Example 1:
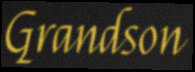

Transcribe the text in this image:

Grandson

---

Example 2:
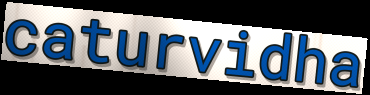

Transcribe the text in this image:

caturvidha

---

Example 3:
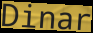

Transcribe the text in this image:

Dinar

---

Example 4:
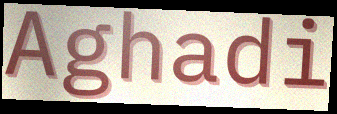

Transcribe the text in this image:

Aghadi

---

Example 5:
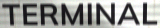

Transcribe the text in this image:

TERMINAL